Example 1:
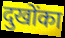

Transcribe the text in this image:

दुखोंका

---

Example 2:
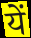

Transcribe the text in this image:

यें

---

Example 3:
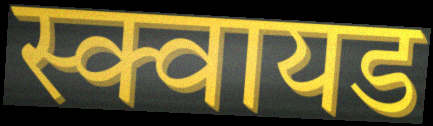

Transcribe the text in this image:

स्क्वायड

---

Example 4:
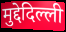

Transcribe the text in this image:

मुद्देदिल्ली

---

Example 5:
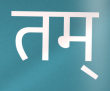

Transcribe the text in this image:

तम्